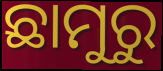
ଛାମୁରୁ